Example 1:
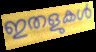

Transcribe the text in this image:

ഇതളുകൾ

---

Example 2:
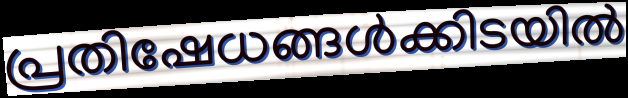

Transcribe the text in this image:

പ്രതിഷേധങ്ങൾക്കിടയിൽ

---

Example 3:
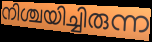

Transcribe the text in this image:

നിശ്ചയിച്ചിരുന്ന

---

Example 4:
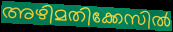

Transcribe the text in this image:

അഴിമതിക്കേസിൽ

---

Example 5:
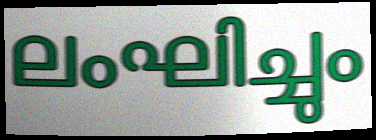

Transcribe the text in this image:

ലംഘിച്ചും